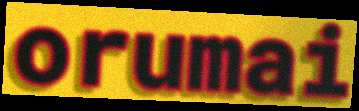
orumai